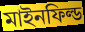
মাইনফিল্ড